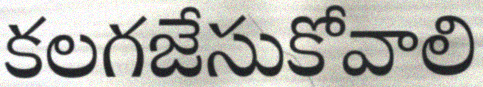
కలగజేసుకోవాలి